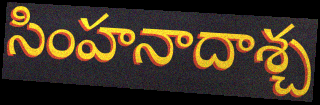
సింహనాదాశ్చ